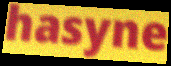
hasyne